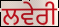
ਲਵੇਰੀ